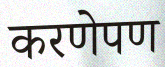
करणेपण